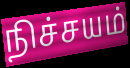
நிச்சயம்